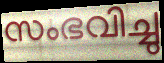
സംഭവിച്ചു